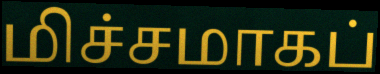
மிச்சமாகப்